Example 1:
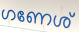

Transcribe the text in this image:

ഗണേശ്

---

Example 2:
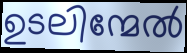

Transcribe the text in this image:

ഉടലിന്മേൽ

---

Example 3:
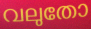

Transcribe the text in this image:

വലുതോ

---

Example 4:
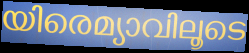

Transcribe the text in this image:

യിരെമ്യാവിലൂടെ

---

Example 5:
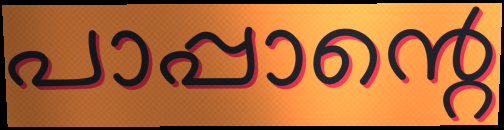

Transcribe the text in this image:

പാപ്പാന്റെ